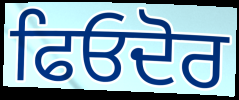
ਫਿਓਦੋਰ